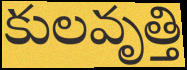
కులవృత్తి